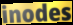
inodes